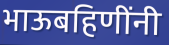
भाऊबहिणींनी